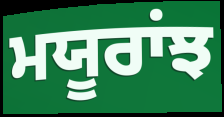
ਮਯੂਰਾਂਝ